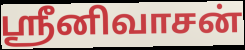
ஸ்ரீனிவாசன்